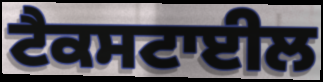
ਟੈਕਸਟਾਈਲ